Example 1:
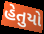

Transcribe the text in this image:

હેતુયો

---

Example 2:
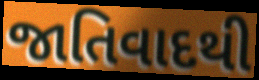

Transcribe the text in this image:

જાતિવાદથી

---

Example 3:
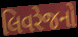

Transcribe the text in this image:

લિવરેજનો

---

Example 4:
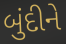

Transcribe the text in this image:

બુંદીને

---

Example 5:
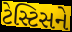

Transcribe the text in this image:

ટેસ્ટિસને